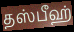
தஸ்பீஹ்